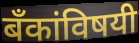
बँकांविषयी